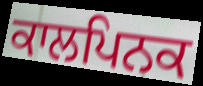
ਕਾਲਪਿਨਕ